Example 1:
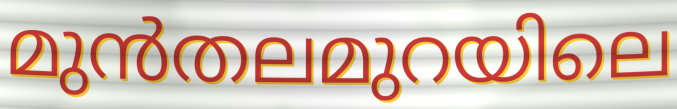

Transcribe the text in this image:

മുൻതലമുറയിലെ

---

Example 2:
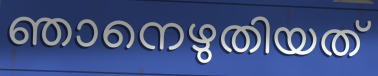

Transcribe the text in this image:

ഞാനെഴുതിയത്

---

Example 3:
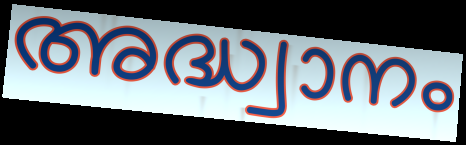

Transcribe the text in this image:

അദ്ധ്വാനം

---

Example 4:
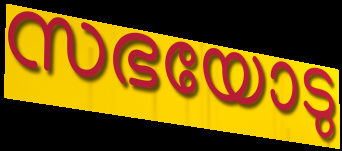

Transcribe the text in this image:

സഭയോടു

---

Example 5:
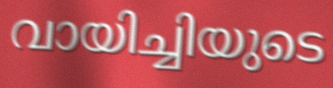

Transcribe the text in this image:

വായിച്ചിയുടെ